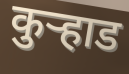
कुऱ्हाड